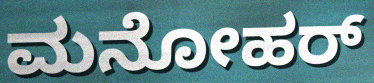
ಮನೋಹರ್